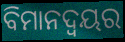
ବିମାନଦ୍ବୟର